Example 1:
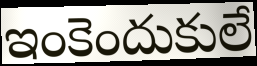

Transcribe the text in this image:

ఇంకెందుకులే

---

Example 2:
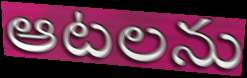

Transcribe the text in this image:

ఆటలను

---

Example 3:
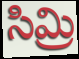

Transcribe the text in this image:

సిమ్రి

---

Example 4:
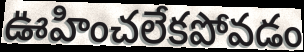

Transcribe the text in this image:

ఊహించలేకపోవడం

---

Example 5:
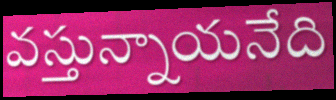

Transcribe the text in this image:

వస్తున్నాయనేది